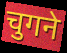
चुगने